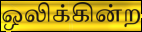
ஒலிக்கின்ற